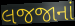
લજજાનાં